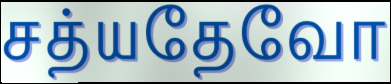
சத்யதேவோ